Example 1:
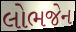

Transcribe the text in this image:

લોભજેન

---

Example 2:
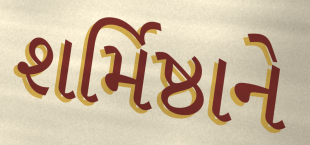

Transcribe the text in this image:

શર્મિષ્ઠાને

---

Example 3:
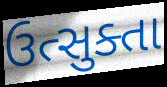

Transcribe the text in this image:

ઉત્સુક્તા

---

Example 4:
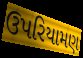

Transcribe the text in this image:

ઉપરિયામણ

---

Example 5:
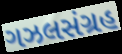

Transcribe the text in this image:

ગઝલસંગ્રહ